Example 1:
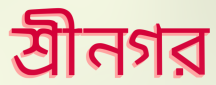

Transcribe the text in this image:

শ্রীনগর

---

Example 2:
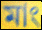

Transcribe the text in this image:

মাং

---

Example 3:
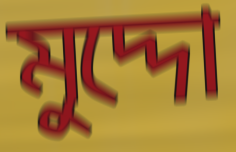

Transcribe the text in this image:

মুদ্দো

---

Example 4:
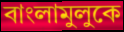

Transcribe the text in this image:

বাংলামুলুকে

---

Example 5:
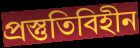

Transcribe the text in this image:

প্রস্তুতিবিহীন